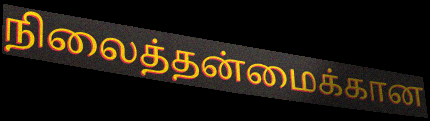
நிலைத்தன்மைக்கான